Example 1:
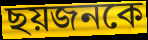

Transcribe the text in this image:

ছয়জনকে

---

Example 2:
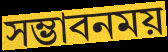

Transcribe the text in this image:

সম্ভাবনময়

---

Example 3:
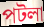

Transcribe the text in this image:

পটলা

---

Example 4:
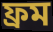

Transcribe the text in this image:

ফ্রম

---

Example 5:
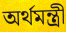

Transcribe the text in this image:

অর্থমন্ত্রী